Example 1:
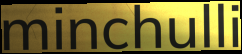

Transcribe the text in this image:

minchulli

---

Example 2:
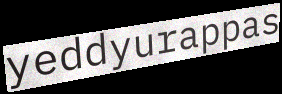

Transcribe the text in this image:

yeddyurappas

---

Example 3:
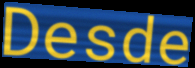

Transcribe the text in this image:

Desde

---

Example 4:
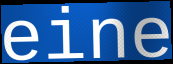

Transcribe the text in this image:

eine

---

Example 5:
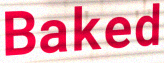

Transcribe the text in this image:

Baked